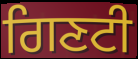
ਗਿਣਟੀ